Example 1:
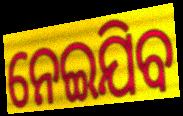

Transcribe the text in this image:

ନେଇଯିବ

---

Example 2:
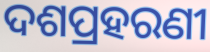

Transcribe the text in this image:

ଦଶପ୍ରହରଣୀ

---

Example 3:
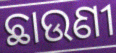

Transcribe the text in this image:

ଛାଉଣୀ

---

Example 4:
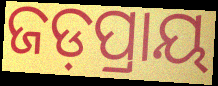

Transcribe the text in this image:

ଜଡ଼ପ୍ରାୟ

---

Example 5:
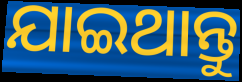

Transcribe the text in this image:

ଯାଇଥାନ୍ତୁ